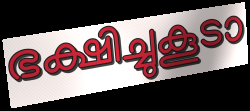
ഭക്ഷിച്ചുകൂടാ